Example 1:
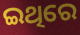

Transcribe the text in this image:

ଇଥିରେ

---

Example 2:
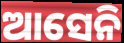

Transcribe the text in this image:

ଆସେନି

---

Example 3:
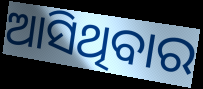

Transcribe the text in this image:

ଆସିଥିବାର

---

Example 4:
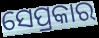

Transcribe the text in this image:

ସେପ୍ରକାର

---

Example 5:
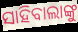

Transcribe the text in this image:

ସାହିବାଲାଙ୍କୁ